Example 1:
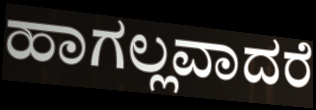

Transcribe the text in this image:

ಹಾಗಲ್ಲವಾದರೆ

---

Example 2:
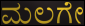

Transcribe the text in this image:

ಮಲಗೇ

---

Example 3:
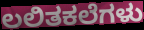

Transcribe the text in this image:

ಲಲಿತಕಲೆಗಳು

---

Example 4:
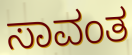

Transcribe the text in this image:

ಸಾವಂತ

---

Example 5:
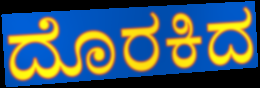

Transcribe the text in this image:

ದೊರಕಿದ